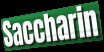
Saccharin